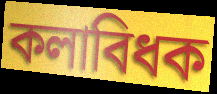
কলাবিধক